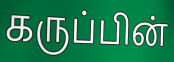
கருப்பின்